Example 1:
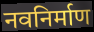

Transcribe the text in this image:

नवनिर्माण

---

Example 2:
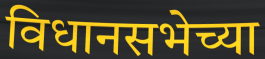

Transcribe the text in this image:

विधानसभेच्या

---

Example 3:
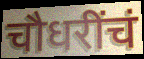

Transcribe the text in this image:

चौधरींचं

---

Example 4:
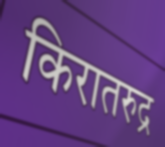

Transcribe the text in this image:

किरातरुद्र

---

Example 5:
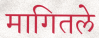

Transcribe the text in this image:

मागितले